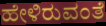
ಹೇಳಿರುವಂತೆ